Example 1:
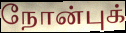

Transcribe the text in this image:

நோன்புக்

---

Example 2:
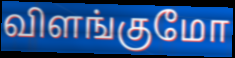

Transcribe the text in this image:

விளங்குமோ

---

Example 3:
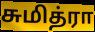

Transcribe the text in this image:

சுமித்ரா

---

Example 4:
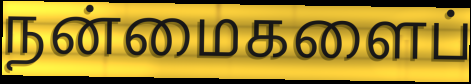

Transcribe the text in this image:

நன்மைகளைப்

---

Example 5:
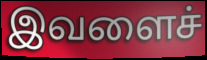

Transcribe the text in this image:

இவளைச்